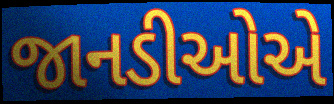
જાનડીઓએ